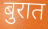
बुरात